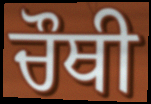
ਚੌਥੀ